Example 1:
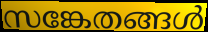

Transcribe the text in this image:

സങ്കേതങ്ങൾ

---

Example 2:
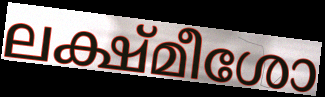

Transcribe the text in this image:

ലക്ഷ്മീശോ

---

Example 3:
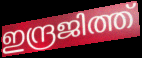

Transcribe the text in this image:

ഇന്ദ്രജിത്ത്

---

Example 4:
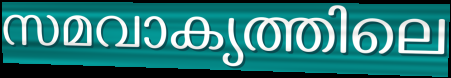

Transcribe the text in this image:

സമവാക്യത്തിലെ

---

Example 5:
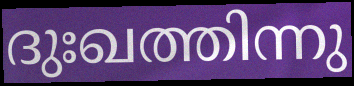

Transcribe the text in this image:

ദുഃഖത്തിന്നു